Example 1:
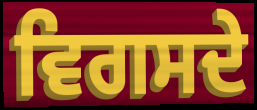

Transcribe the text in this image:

ਵਿਗਸਦੇ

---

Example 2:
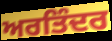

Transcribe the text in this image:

ਅਰਤਿੰਦਰ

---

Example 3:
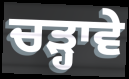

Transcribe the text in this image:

ਚੜ੍ਹਾਵੇ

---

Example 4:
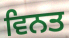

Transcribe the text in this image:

ਵਿਨਤ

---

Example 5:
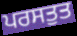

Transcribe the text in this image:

ਪਰਸਤੁਤ